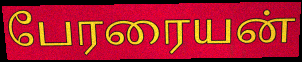
பேரரையன்